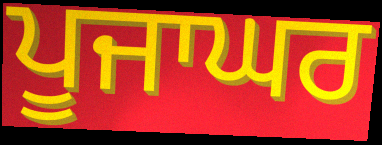
ਪੂਜਾਘਰ